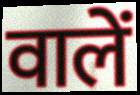
वालें